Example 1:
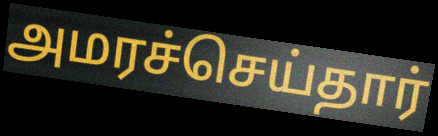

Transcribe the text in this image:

அமரச்செய்தார்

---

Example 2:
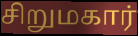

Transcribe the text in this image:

சிறுமகார்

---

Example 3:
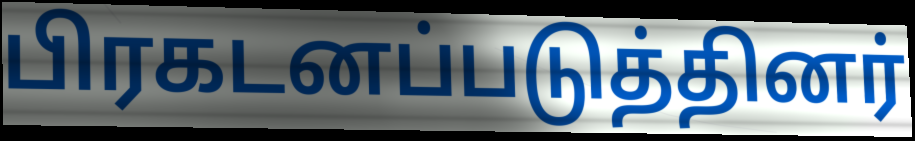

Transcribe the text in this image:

பிரகடனப்படுத்தினர்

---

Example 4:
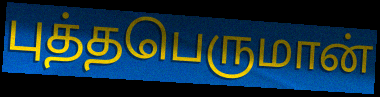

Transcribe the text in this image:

புத்தபெருமான்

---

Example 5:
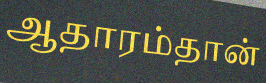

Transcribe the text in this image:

ஆதாரம்தான்